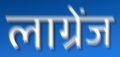
लाग्रेंज